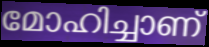
മോഹിച്ചാണ്